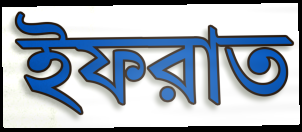
ইফরাত